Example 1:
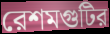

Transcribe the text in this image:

রেশমগুটির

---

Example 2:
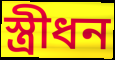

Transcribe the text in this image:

স্ত্রীধন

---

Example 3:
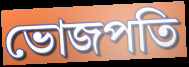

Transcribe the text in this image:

ভোজপতি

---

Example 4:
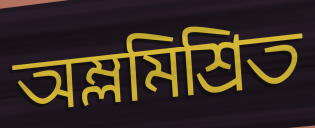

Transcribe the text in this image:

অম্লমিশ্রিত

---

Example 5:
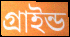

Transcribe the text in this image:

গ্রাইন্ড